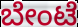
ಬೇಂಟೆ